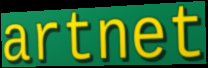
artnet